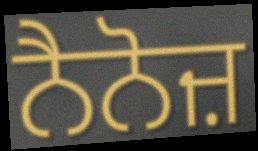
ਨੈਨੋਜ਼